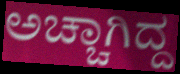
ಅಚ್ಚಾಗಿದ್ದ